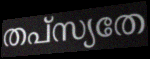
തപ്സ്യതേ